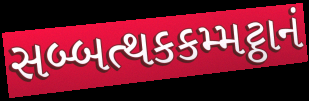
સબ્બત્થકકમ્મટ્ઠાનં